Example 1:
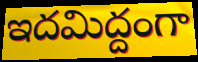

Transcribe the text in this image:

ఇదమిద్దంగా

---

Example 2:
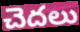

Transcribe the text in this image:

చెదలు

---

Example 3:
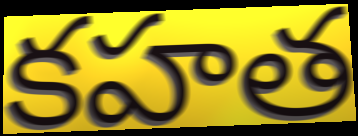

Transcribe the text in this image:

కహత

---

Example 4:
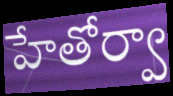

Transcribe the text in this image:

హేతోర్వా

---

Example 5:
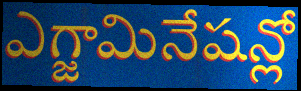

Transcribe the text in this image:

ఎగ్జామినేషన్లో